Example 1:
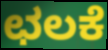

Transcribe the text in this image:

ಛಲಕೆ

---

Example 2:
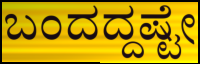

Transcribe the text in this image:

ಬಂದದ್ದಷ್ಟೇ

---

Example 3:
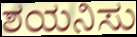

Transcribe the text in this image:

ಶಯನಿಸು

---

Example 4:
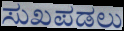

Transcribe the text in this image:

ಸುಖಪಡಲು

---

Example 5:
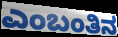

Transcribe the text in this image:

ಎಂಬಂತಿನ